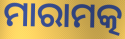
ମାରାମତ୍କ